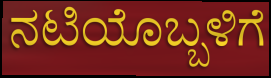
ನಟಿಯೊಬ್ಬಳಿಗೆ